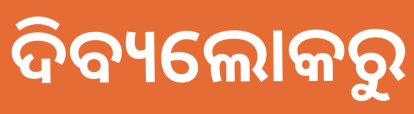
ଦିବ୍ୟଲୋକରୁ